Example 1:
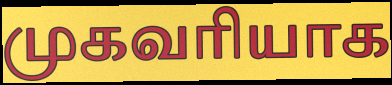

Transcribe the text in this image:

முகவரியாக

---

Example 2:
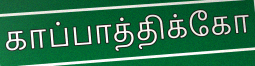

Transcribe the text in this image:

காப்பாத்திக்கோ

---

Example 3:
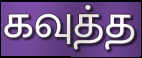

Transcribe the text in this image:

கவுத்த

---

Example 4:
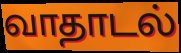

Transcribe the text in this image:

வாதாடல்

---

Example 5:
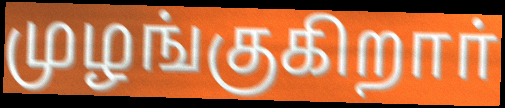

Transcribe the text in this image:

முழங்குகிறார்